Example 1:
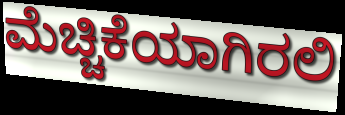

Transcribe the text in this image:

ಮೆಚ್ಚಿಕೆಯಾಗಿರಲಿ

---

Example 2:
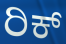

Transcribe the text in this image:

ರಿಕ್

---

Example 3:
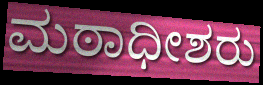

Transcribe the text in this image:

ಮಠಾಧೀಶರು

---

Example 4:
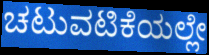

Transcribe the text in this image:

ಚಟುವಟಿಕೆಯಲ್ಲೇ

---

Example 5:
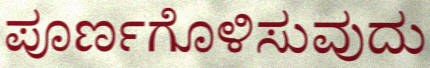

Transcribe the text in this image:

ಪೂರ್ಣಗೊಳಿಸುವುದು